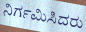
ನಿರ್ಗಮಿಸಿದರು